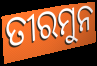
ତୀରମୁନ